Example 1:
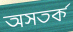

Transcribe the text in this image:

অসতর্ক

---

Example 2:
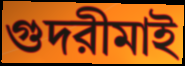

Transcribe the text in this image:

গুদরীমাই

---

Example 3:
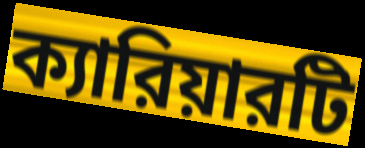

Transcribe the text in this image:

ক্যারিয়ারটি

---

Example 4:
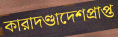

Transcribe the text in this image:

কারাদণ্ডাদেশপ্রাপ্ত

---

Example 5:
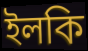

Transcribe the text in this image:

ইলকি